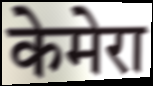
केमेरा